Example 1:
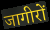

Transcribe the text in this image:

जागीरों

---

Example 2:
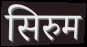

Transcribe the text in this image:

सिरुम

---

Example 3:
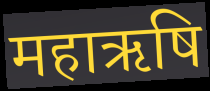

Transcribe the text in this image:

महाऋषि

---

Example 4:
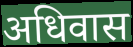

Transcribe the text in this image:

अधिवास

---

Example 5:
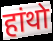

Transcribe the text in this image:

हांथो